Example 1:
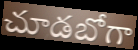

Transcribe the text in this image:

చూడబోగా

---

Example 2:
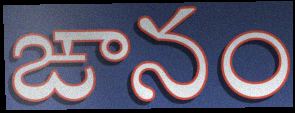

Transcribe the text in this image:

ఙానం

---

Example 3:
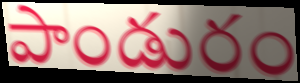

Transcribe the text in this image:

పాండురం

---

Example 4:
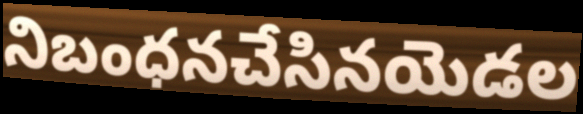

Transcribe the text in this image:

నిబంధనచేసినయెడల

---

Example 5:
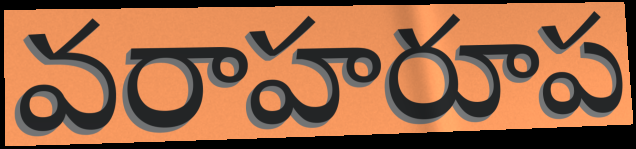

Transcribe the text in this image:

వరాహరూప